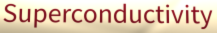
Superconductivity